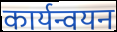
कार्यन्वयन